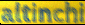
altinchi